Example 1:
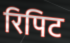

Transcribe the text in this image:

रिपिट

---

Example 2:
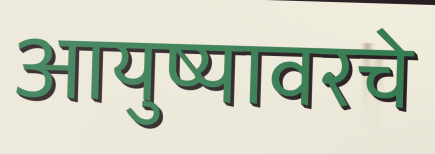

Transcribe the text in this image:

आयुष्यावरचे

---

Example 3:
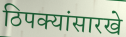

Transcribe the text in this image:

ठिपक्यांसारखे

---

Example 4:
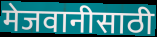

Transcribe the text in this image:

मेजवानीसाठी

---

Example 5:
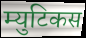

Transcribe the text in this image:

म्युटिकस